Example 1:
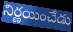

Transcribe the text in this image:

నిర్ణయించేడు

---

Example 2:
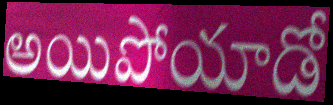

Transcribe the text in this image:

అయిపోయాడో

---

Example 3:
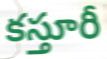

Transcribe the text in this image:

కస్తూరీ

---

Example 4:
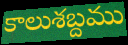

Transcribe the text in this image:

కాలుశబ్దము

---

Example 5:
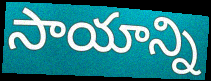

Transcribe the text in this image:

సాయాన్ని